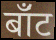
बांँट